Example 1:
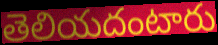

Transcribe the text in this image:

తెలియదంటారు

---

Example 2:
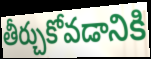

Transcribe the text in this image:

తీర్చుకోవడానికి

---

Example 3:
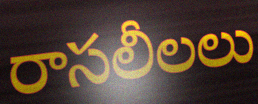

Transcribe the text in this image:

రాసలీలలు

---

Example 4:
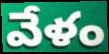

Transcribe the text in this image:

వేళం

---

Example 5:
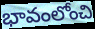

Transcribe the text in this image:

భావంలోంచి